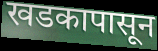
खडकापासून